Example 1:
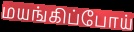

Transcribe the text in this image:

மயங்கிப்போய்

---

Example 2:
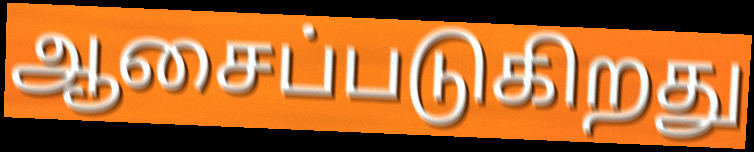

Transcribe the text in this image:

ஆசைப்படுகிறது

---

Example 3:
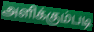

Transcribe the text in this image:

அளிக்கும்படி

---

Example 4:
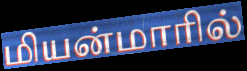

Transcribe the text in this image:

மியன்மாரில்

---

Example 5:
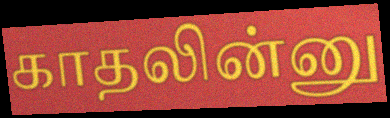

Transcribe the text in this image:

காதலின்னு